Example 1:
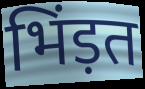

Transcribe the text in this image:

भिंड़त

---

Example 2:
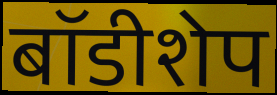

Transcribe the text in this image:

बॉडीशेप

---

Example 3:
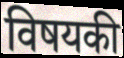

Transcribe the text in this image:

विषयकी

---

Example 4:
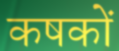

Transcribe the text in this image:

कषकों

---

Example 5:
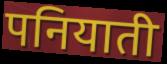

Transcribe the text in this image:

पनियाती